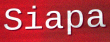
Siapa